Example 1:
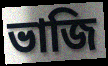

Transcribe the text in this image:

ভাজি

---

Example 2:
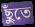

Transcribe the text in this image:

ছুঁতে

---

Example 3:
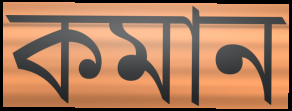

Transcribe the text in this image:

কমান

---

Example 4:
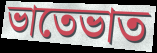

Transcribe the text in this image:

ভাতেভাত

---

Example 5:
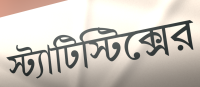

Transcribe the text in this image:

স্ট্যাটিস্টিক্সের